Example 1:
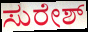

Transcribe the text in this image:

ಸುರೇಶ್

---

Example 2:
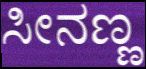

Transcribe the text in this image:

ಸೀನಣ್ಣ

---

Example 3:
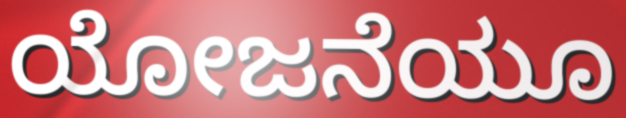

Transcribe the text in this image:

ಯೋಜನೆಯೂ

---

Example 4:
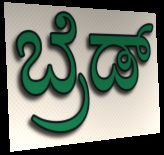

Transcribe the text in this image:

ಬ್ರೆಡ್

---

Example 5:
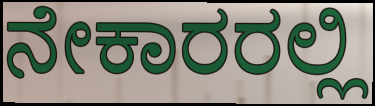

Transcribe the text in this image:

ನೇಕಾರರಲ್ಲಿ